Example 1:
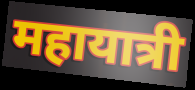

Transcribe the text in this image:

महायात्री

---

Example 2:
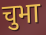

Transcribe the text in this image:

चुभा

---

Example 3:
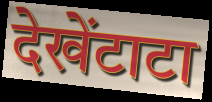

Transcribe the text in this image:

देखेंटाटा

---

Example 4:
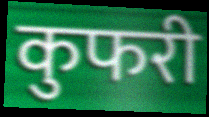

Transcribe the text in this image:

कुफरी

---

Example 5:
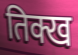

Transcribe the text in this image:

तिक्ख